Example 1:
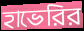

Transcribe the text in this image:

হাভেরির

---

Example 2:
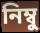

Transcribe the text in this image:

নিম্বু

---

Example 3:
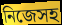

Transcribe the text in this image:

নিজেসহ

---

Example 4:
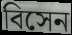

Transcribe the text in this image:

বিসেন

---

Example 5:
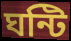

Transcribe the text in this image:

ঘন্টি